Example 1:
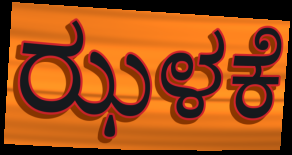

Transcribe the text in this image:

ಝಳಕೆ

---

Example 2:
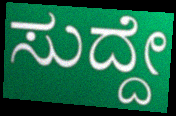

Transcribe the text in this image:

ಸುದ್ದೇ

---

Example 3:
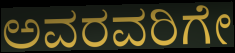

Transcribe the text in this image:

ಅವರವರಿಗೇ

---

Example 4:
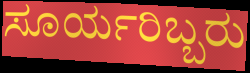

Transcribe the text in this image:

ಸೂರ್ಯರಿಬ್ಬರು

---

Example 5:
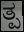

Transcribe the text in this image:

ತ್ಪ